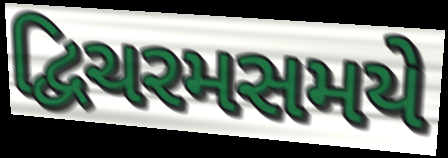
દ્વિચરમસમયે